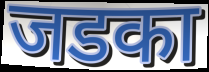
जडका